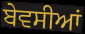
ਬੇਵਸੀਆਂ